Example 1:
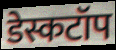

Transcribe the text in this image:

डेस्कटॉप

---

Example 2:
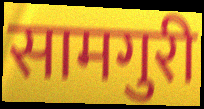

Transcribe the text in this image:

सामगुरी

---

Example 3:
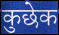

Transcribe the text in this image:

कुछेक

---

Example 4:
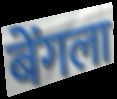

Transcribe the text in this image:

बेंगला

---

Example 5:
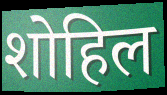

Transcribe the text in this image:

शोहिल